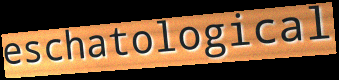
eschatological